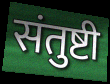
संतुष्टी